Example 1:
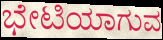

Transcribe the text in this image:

ಭೇಟಿಯಾಗುವ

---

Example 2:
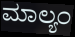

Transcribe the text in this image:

ಮಾಲ್ಯಂ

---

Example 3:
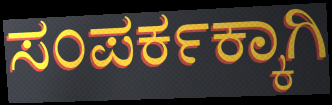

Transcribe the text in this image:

ಸಂಪರ್ಕಕ್ಕಾಗಿ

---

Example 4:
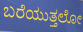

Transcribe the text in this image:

ಬರೆಯುತ್ತಲೋ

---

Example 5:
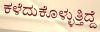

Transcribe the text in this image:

ಕಳೆದುಕೊಳ್ಳುತ್ತಿದ್ದೆ